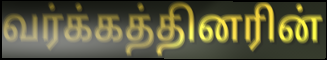
வர்க்கத்தினரின்